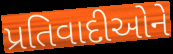
પ્રતિવાદીઓને